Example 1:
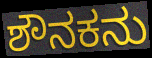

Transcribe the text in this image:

ಶೌನಕನು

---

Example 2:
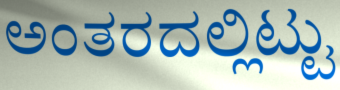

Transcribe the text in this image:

ಅಂತರದಲ್ಲಿಟ್ಟು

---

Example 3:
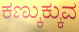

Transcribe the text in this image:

ಕಣ್ಕುಕ್ಕುವ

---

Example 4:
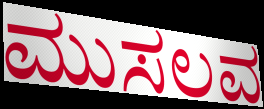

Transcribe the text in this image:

ಮುಸಲವ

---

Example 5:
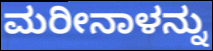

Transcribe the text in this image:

ಮರೀನಾಳನ್ನು